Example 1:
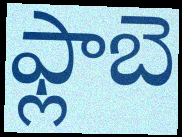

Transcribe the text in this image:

ఫ్లాబె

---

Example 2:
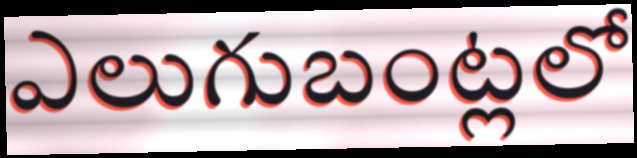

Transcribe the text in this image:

ఎలుగుబంట్లలో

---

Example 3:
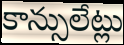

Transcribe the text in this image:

కాన్సులేట్లు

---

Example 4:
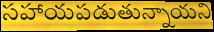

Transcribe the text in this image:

సహాయపడుతున్నాయని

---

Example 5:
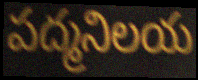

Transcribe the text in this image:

పద్మనిలయ